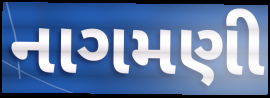
નાગમણી